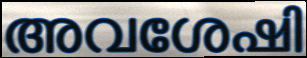
അവശേഷി